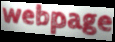
webpage